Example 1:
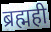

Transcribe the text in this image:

ब्रह्मही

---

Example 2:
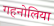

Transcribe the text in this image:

गहनोलिया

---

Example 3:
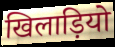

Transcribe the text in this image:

खिलाड़ियो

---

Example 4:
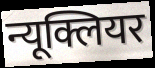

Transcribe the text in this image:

न्‍यूक्लियर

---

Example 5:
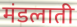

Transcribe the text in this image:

मंडलाती